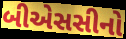
બીએસસીનો